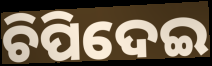
ଚିପିଦେଇ